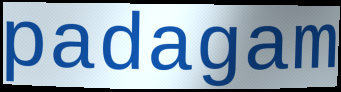
padagam